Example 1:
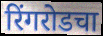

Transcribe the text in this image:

रिंगरोडचा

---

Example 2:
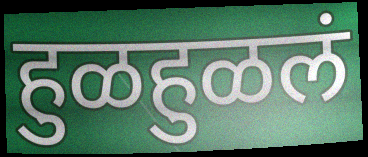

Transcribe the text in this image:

हुळहुळलं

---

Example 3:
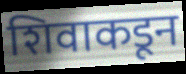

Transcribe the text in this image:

शिवाकडून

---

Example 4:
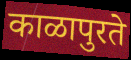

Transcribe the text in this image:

काळापुरते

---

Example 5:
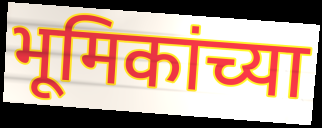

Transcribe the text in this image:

भूमिकांच्या